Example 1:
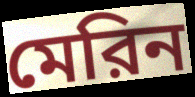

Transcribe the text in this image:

মেরিন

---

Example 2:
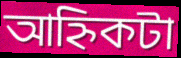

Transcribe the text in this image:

আহ্নিকটা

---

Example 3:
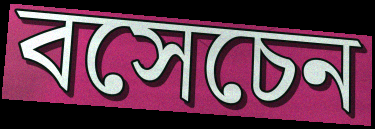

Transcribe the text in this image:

বসেচেন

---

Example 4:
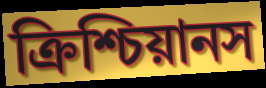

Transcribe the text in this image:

ক্রিশ্চিয়ানস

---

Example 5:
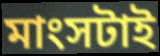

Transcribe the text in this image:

মাংসটাই